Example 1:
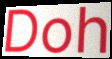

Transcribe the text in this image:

Doh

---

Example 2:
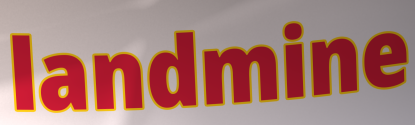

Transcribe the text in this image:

landmine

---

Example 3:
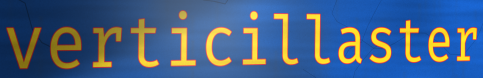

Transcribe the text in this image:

verticillaster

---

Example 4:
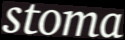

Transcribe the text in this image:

stoma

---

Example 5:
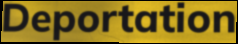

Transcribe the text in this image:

Deportation